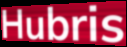
Hubris